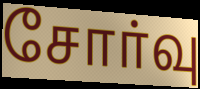
சோர்வு